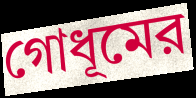
গোধূমের